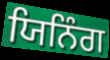
ਯਿਨਿੰਗ